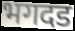
भगदड